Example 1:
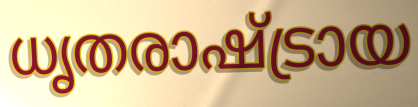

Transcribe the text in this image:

ധൃതരാഷ്ട്രായ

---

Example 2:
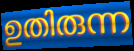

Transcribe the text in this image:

ഉതിരുന്ന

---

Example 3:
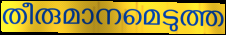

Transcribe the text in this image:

തീരുമാനമെടുത്ത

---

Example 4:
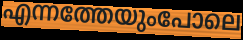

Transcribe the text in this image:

എന്നത്തേയുംപോലെ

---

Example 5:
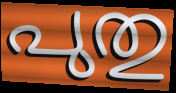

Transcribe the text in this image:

പുതു